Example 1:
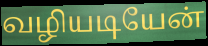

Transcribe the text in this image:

வழியடியேன்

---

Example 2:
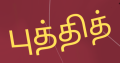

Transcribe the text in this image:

புத்தித்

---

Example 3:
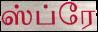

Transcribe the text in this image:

ஸ்ப்ரே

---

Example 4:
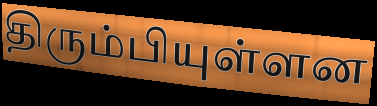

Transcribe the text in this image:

திரும்பியுள்ளன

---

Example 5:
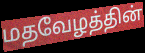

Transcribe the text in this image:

மதவேழத்தின்